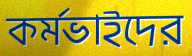
কর্মভাইদের